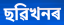
ছৱিখনৰ